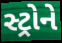
સ્ટ્રોને